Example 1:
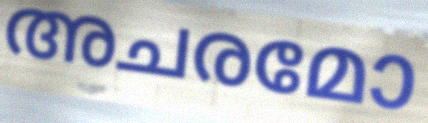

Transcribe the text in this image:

അചരമോ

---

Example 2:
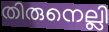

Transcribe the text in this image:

തിരുനെല്ലി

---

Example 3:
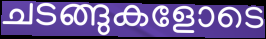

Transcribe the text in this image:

ചടങ്ങുകളോടെ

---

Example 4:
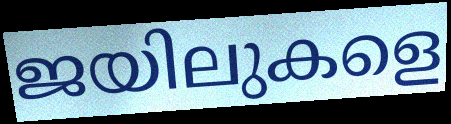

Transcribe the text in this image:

ജയിലുകളെ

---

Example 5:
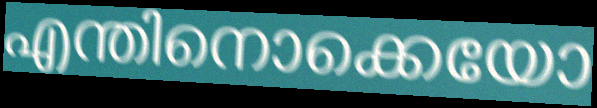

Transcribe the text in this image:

എന്തിനൊക്കെയോ